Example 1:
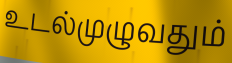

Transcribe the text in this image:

உடல்முழுவதும்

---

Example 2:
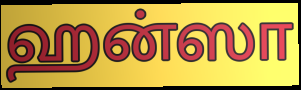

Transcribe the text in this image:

ஹன்ஸா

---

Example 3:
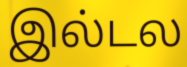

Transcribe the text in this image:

இல்டல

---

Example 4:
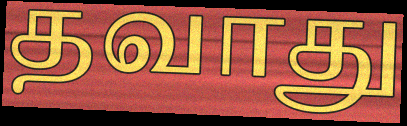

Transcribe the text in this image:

தவாது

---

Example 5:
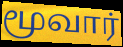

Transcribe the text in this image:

மூவார்